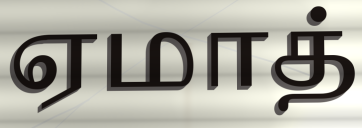
ஏமாத்